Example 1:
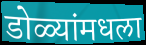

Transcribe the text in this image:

डोळ्यांमधला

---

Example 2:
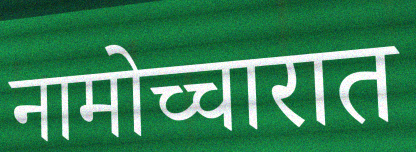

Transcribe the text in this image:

नामोच्चारात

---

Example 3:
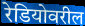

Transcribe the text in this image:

रेडियोवरील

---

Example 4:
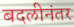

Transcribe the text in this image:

बदलीनंतर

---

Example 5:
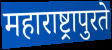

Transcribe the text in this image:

महाराष्ट्रापुरते